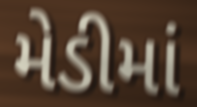
મેડીમાં